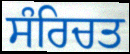
ਸੰਰਿਚਤ